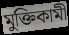
মুক্তিকামী